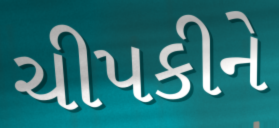
ચીપકીને